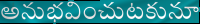
అనుభవించుటకునూ